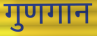
गुणगान